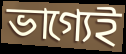
ভাগ্যেই